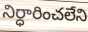
నిర్ధారించలేని